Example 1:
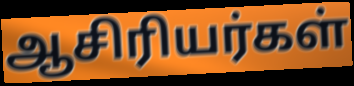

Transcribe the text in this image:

ஆசிரியர்கள்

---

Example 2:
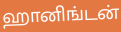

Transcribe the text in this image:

ஹானிங்டன்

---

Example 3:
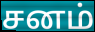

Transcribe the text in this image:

சனம்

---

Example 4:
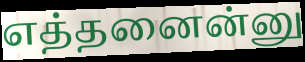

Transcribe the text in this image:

எத்தனைன்னு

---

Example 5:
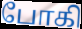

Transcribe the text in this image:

போகி